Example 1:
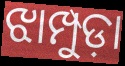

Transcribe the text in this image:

ଝାମ୍ପୁଡ଼ା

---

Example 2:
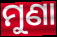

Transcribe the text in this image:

ମୁଣା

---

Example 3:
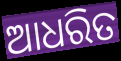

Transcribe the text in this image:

ଆଧରିତ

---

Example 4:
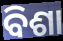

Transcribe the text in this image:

ବିଶା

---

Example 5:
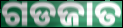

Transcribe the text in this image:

ଗଡଜାତ